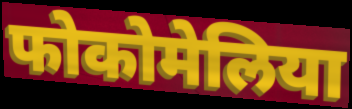
फोकोमेलिया